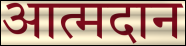
आत्मदान